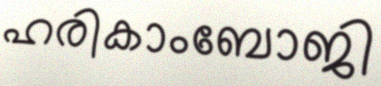
ഹരികാംബോജി